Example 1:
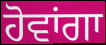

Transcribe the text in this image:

ਹੋਵਾਂਗਾ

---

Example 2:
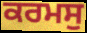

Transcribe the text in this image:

ਕਰਮਸੁ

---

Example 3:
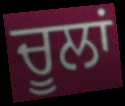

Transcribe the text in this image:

ਚੂਲਾਂ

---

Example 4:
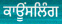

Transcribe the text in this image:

ਕਾਊਂਸਲਿੰਗ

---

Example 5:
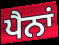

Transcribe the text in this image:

ਪੈਨਾਂ